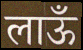
लाऊँ